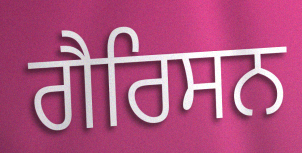
ਗੈਰਿਸਨ